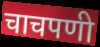
चाचपणी